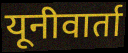
यूनीवार्ता